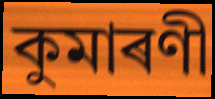
কুমাৰণী